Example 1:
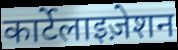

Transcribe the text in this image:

कार्टेलाइज़ेशन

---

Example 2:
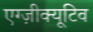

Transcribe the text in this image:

एग्ज़ीक्यूटिव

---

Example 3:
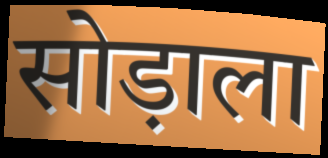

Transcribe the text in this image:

सोड़ाला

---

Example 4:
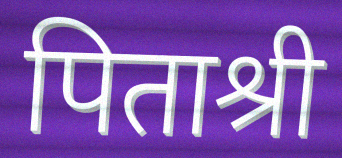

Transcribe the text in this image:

पिताश्री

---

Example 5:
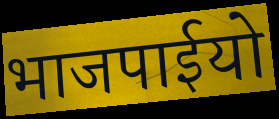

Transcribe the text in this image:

भाजपाईयो